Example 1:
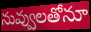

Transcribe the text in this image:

నువ్వులతోనూ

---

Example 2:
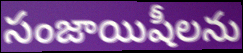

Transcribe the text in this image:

సంజాయిషీలను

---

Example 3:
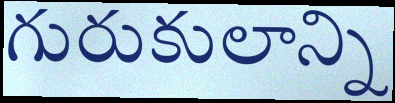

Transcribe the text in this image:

గురుకులాన్ని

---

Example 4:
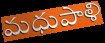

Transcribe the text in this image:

మధుపాళి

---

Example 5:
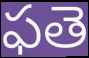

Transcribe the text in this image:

ఫతె